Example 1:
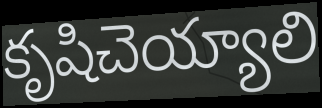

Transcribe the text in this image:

కృషిచెయ్యాలి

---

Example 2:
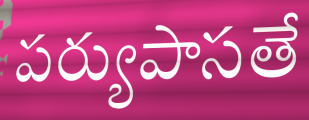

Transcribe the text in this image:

పర్యుపాసతే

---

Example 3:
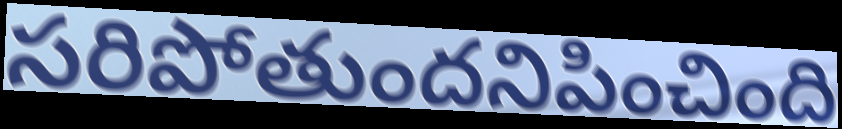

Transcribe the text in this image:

సరిపోతుందనిపించింది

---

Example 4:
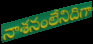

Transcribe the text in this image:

నాశనంలేనిదిగా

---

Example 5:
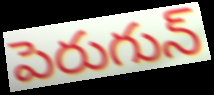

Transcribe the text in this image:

పెరుగున్